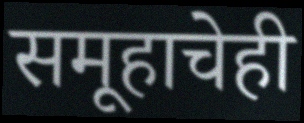
समूहाचेही